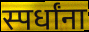
स्पर्धांना